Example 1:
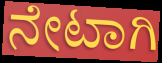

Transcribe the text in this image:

ನೇಟಾಗಿ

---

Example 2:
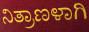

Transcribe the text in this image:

ನಿತ್ರಾಣಳಾಗಿ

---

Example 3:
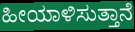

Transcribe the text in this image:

ಹೀಯಾಳಿಸುತ್ತಾನೆ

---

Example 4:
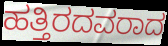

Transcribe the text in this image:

ಹತ್ತಿರದವರಾದ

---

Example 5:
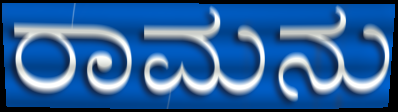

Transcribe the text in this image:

ರಾಮನು